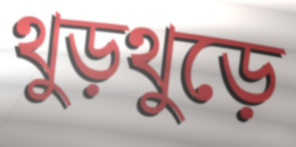
থুড়থুড়ে